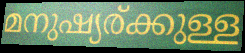
മനുഷ്യര്ക്കുള്ള